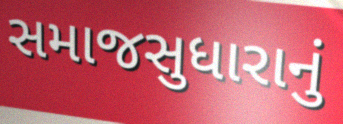
સમાજસુધારાનું